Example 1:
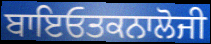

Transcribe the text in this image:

ਬਾਇਓਤਕਨਾਲੋਜੀ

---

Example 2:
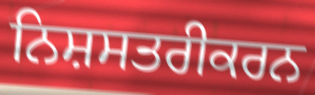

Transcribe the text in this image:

ਨਿਸ਼ਸਤਰੀਕਰਨ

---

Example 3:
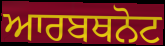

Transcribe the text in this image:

ਆਰਬਥਨੋਟ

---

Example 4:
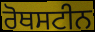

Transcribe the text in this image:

ਰੋਥਸਟੀਨ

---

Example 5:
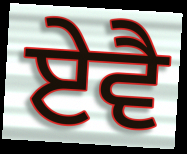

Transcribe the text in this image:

ਏਵੈ